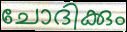
ചോദിക്കും